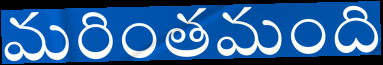
మరింతమంది